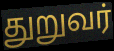
துறுவர்